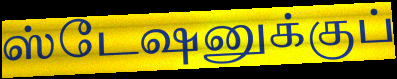
ஸ்டேஷனுக்குப்